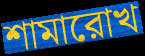
শামারোখ